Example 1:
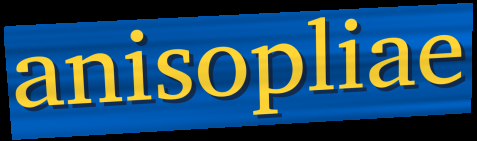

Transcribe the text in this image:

anisopliae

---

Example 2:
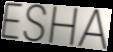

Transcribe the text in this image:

ESHA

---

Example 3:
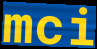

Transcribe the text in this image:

mci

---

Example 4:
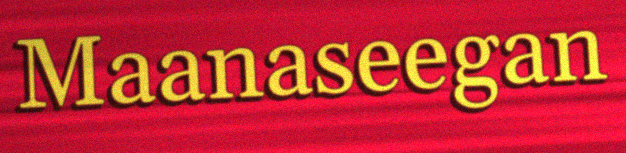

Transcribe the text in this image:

Maanaseegan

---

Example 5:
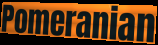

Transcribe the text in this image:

Pomeranian